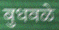
बुधवळे